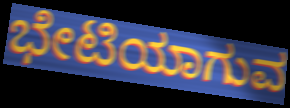
ಭೇಟಿಯಾಗುವ